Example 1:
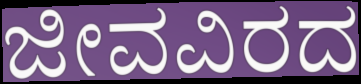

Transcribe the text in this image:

ಜೀವವಿರದ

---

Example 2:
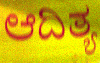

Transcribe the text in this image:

ಆದಿತ್ಯ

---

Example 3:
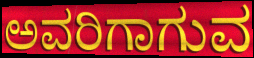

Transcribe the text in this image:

ಅವರಿಗಾಗುವ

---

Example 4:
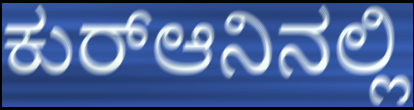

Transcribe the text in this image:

ಕುರ್‍ಆನಿನಲ್ಲಿ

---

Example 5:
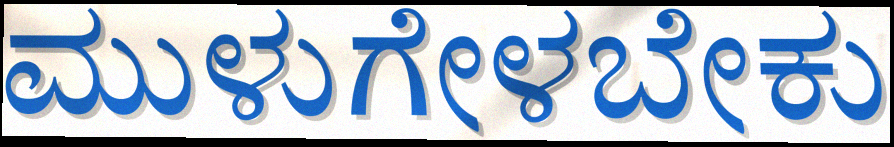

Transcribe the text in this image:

ಮುಳುಗೇಳಬೇಕು